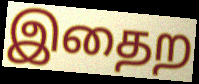
இதைற